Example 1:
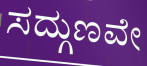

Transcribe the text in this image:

ಸದ್ಗುಣವೇ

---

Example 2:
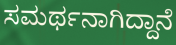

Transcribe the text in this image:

ಸಮರ್ಥನಾಗಿದ್ದಾನೆ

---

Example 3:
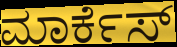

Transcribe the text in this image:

ಮಾರ್ಕೆಸ್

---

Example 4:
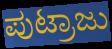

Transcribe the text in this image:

ಪುಟ್ರಾಜು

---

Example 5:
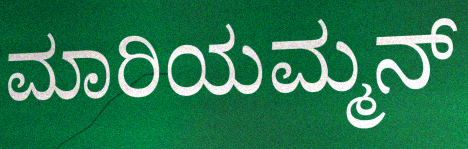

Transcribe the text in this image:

ಮಾರಿಯಮ್ಮನ್